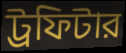
ট্রফিটার